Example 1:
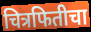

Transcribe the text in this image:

चित्रफितीचा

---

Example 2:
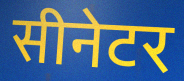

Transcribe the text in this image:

सीनेटर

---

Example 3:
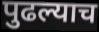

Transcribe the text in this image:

पुढल्याच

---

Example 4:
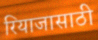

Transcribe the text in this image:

रियाजासाठी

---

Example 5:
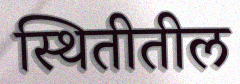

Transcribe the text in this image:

स्थितीतील